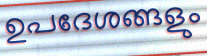
ഉപദേശങ്ങളും